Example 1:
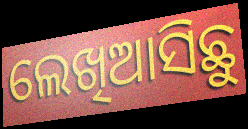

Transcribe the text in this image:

ଲେଖିଆସିଛୁ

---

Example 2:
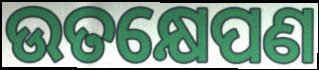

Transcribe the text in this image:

ଉତକ୍ଷେପଣ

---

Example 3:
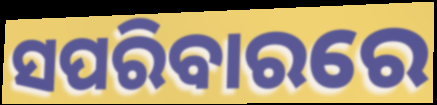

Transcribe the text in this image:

ସପରିବାରରେ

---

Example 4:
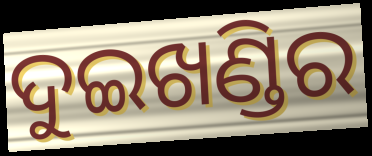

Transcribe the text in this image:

ଦୁଇଖଣ୍ଡିର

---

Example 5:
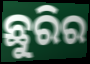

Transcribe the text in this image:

ଛୁରିର